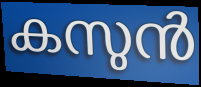
കസുൻ